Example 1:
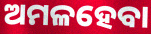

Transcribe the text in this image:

ଅମଳହେବା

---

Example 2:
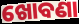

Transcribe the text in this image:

ଖୋବଣା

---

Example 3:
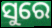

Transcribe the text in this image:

ସୁରେ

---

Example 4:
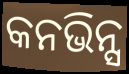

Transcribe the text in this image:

କନଭିନ୍ସ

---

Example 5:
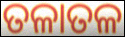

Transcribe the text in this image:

ତଳାତଳ